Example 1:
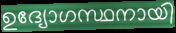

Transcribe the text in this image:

ഉദ്യോഗസ്ഥനായി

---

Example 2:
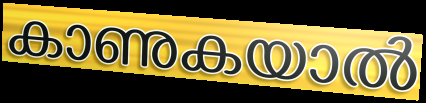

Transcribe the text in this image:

കാണുകയാൽ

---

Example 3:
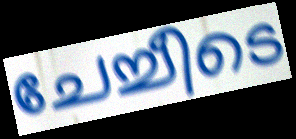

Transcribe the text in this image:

ചേച്ചീടെ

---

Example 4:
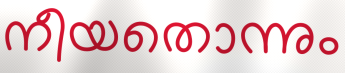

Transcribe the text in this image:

നീയതൊന്നും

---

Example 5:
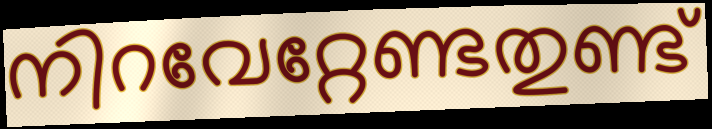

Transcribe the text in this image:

നിറവേറ്റേണ്ടതുണ്ട്